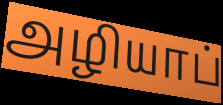
அழியாப்